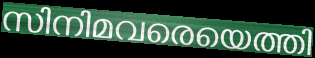
സിനിമവരെയെത്തി